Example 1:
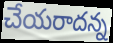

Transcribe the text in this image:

చేయరాదన్న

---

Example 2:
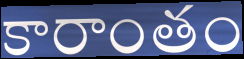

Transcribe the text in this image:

కారాంతం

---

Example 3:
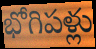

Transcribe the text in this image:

భోగిపళ్లు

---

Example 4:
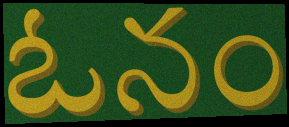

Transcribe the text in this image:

ఓనం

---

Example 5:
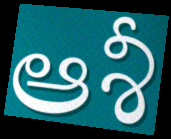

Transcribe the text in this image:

ఆశీ